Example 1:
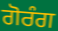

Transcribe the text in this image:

ਗੋਰੰਗ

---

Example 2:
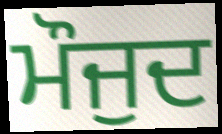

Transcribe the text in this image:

ਮੌਜੁਦ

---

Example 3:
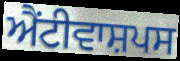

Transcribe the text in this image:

ਐਂਟੀਵਾਸ਼ਪਸ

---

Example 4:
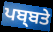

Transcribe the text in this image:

ਪਬ੍ਬਤੇ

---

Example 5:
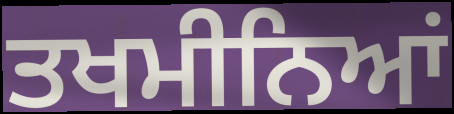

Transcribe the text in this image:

ਤਖਮੀਨਿਆਂ